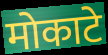
मोकाटे